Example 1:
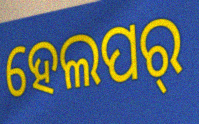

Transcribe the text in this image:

ହେଲପର୍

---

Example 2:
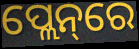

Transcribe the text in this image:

ପ୍ଲେନ୍‌ରେ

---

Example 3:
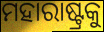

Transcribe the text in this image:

ମହାରାଷ୍ଟ୍ରକୁ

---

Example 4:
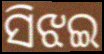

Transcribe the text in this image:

ସିଝଇ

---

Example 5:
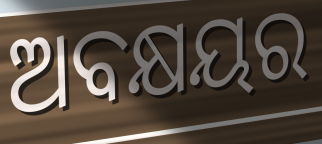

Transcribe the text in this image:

ଅବକ୍ଷୟର